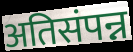
अतिसंपन्न